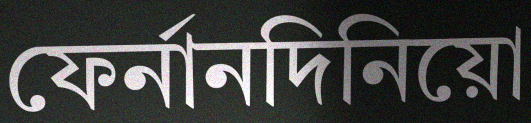
ফের্নানদিনিয়ো